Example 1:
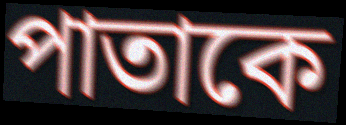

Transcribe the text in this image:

পাতাকে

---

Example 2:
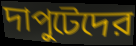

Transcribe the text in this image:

দাপুটেদের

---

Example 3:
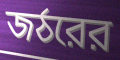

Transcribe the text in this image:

জঠরের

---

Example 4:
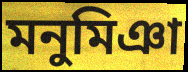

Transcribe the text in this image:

মনুমিঞা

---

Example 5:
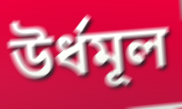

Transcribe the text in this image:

উর্ধমূল